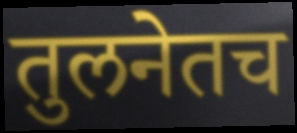
तुलनेतच